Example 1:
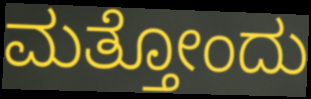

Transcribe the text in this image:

ಮತ್ತೋಂದು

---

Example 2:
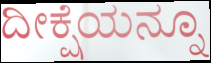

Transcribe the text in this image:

ದೀಕ್ಷೆಯನ್ನೂ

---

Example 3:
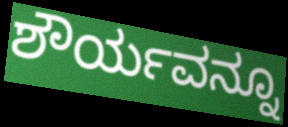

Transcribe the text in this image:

ಶೌರ್ಯವನ್ನೂ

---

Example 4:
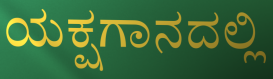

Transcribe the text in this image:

ಯಕ್ಷಗಾನದಲ್ಲಿ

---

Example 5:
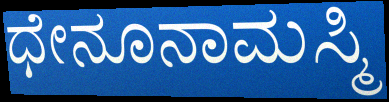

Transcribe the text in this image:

ಧೇನೂನಾಮಸ್ಮಿ